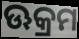
ଊକ୍ରମ